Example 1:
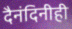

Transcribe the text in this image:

दैनंदिनीही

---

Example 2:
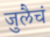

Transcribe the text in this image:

जुलैचं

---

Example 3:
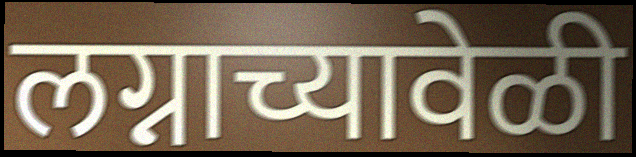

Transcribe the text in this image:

लग्नाच्यावेळी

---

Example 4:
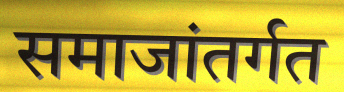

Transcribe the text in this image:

समाजांतर्गत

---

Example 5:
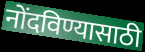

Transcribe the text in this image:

नोंदविण्यासाठी